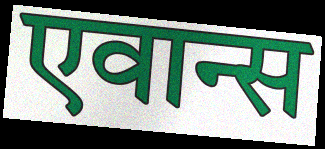
एवान्स